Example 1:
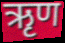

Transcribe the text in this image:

ऋृण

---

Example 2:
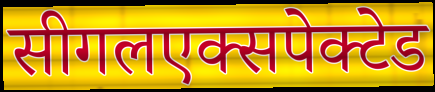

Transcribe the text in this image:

सीगलएक्सपेक्टेड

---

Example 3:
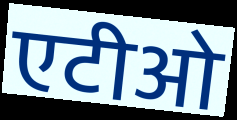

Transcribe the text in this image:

एटीओ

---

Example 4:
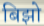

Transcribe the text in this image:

बिझो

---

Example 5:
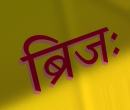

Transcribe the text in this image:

ब्रिजः